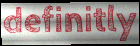
definitly